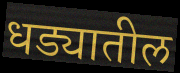
धड्यातील